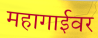
महागाईवर